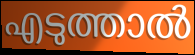
എടുത്താൽ